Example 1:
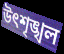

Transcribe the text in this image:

উৎশৃঙ্খল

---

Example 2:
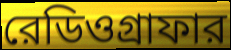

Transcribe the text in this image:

রেডিওগ্রাফার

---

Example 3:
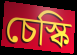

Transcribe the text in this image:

চেস্কি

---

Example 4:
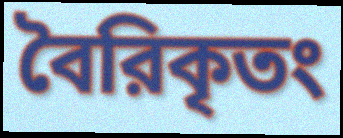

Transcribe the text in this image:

বৈরিকৃতং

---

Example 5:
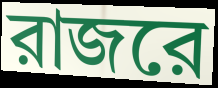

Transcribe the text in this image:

রাজরে